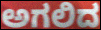
ಅಗಲಿದ